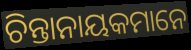
ଚିନ୍ତାନାୟକମାନେ